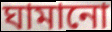
ঘামানো